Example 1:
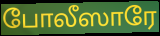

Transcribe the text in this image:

போலீஸாரே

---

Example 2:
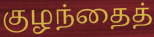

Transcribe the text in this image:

குழந்தைத்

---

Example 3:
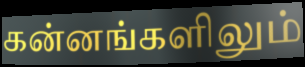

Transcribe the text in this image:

கன்னங்களிலும்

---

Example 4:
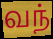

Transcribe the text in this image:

வந்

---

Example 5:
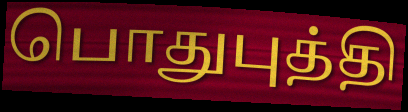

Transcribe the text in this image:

பொதுபுத்தி